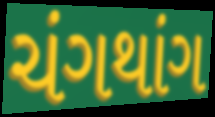
ચંગથાંગ